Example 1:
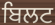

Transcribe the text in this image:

ਬਿਲਟ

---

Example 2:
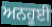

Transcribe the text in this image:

ਅਨਹੂਈ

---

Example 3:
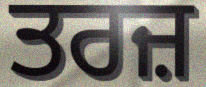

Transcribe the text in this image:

ਤਰਜ਼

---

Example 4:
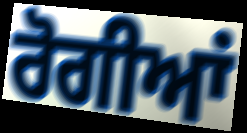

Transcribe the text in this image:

ਰੋਗੀਆਂ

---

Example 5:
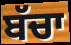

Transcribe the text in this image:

ਬੱਚਾ